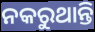
ନକରୁଥାନ୍ତି